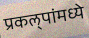
प्रकल्पांमध्ये